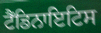
ਟੈਂਡਿਨਾਇਟਿਸ